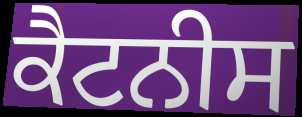
ਕੈਟਨੀਸ